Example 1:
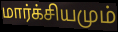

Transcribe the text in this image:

மார்க்சியமும்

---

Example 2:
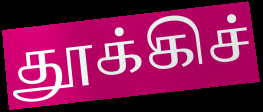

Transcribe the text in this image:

தூக்கிச்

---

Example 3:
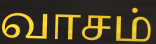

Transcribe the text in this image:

வாசம்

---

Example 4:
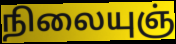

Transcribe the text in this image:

நிலையுஞ்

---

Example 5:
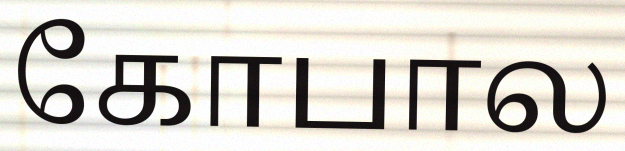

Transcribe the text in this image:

கோபால